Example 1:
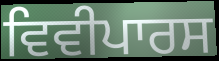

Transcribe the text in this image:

ਵਿਵੀਪਾਰਸ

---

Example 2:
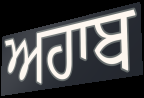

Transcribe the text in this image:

ਅਹਾਬ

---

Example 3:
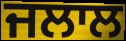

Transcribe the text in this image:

ਜਲਾਲ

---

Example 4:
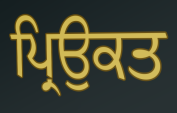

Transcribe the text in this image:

ਪ੍ਰਿਉਕਤ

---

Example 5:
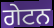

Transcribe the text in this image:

ਗੇਟਨ